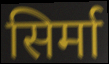
सिर्मा